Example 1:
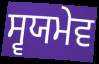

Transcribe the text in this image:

ਸ੍ਵਯਮੇਵ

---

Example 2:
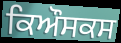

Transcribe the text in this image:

ਕਿਔਸਕਸ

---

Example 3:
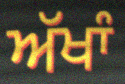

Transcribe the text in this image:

ਅੱਖਾੰ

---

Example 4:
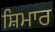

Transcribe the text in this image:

ਸ਼ਿਮਾਰ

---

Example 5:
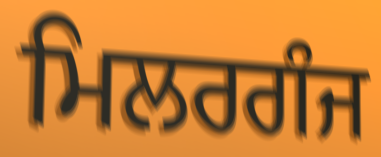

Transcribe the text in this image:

ਮਿਲਰਗੰਜ